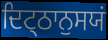
ਦਿਟ੍ਠਾਨੁਸਯਂ